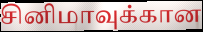
சினிமாவுக்கான